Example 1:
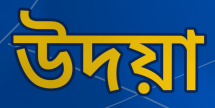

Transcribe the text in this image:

উদয়া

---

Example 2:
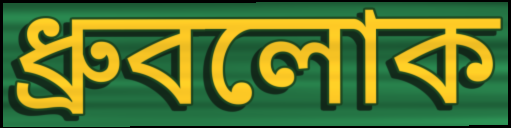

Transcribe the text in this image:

ধ্রুবলোক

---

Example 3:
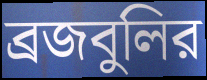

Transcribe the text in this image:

ব্রজবুলির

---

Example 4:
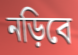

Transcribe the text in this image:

নড়িবে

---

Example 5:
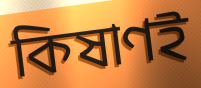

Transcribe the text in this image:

কিষাণই